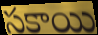
సకాయి